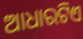
ଆଧାରଟିଏ